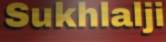
Sukhlalji